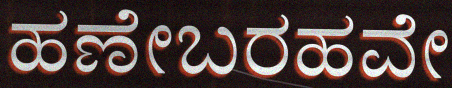
ಹಣೇಬರಹವೇ